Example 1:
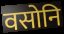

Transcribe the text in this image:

वसोनि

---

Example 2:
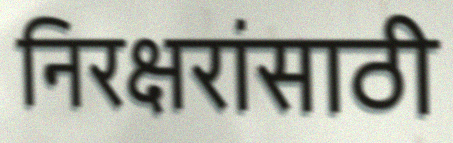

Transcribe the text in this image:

निरक्षरांसाठी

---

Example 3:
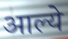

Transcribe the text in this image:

आल्ये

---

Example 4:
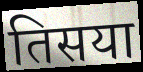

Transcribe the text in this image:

तिसया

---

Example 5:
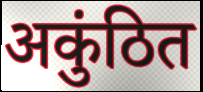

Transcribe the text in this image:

अकुंठित